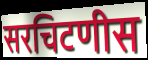
सरचिटणीस